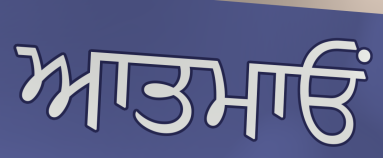
ਆਤਮਾਓਂ